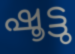
ഷൂട്ടു